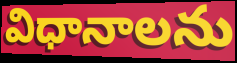
విధానాలను